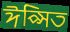
ঈপ্সিত